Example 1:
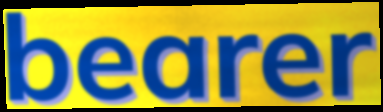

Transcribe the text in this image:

bearer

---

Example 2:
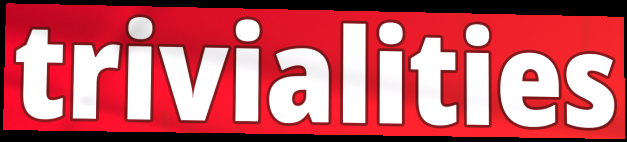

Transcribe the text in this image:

trivialities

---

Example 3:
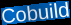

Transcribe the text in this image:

Cobuild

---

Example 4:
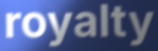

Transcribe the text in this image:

royalty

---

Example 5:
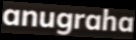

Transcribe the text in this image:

anugraha